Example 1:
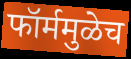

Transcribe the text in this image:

फॉर्ममुळेच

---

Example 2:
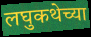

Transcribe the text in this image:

लघुकथेच्या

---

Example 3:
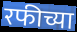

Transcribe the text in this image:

रफीच्या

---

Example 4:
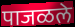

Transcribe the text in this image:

पाजळले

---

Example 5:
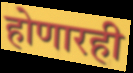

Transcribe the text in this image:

होणारही